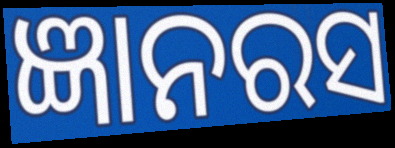
ଜ୍ଞାନରସ